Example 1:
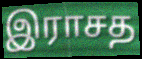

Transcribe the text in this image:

இராசத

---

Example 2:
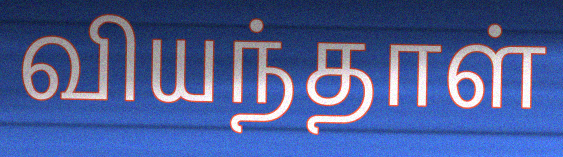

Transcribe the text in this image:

வியந்தாள்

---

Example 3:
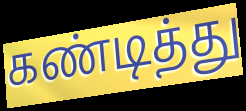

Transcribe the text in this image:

கண்டித்து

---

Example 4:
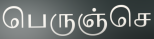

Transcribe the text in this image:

பெருஞ்செ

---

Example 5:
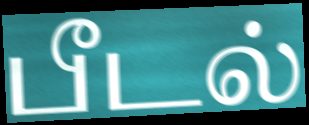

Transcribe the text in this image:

பீடல்